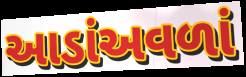
આડાંઅવળાં